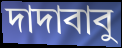
দাদাবাবু